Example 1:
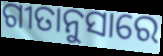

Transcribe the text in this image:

ଗୀତାନୁସାରେ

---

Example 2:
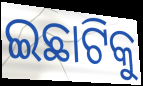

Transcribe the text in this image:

ଇଛାଟିକୁ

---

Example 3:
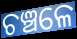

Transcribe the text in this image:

ଚଞ୍ଚଳେ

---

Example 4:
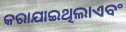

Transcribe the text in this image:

କରାଯାଇଥିଲାଏବଂ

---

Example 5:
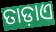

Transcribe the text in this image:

ତାଡ଼ାଏ